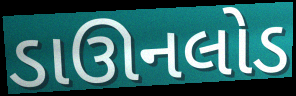
ડાઊનલોડ